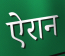
ऐरान